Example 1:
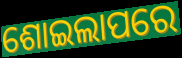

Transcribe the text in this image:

ଶୋଇଲାପରେ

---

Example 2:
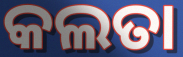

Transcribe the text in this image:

କଲତା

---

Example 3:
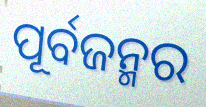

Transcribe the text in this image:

ପୂର୍ବଜନ୍ମର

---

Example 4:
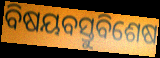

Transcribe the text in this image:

ବିଷୟବସ୍ତୁବିଶେଷ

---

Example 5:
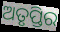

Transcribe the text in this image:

ଅତୃପ୍ତିର